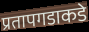
प्रतापगडाकडे